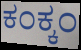
ಕಂಕ್ಕಂ